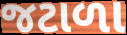
જટાળા